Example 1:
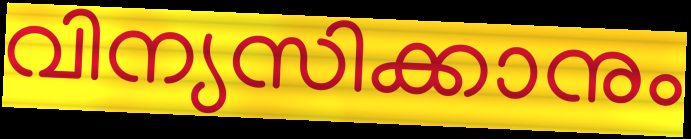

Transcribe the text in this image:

വിന്യസിക്കാനും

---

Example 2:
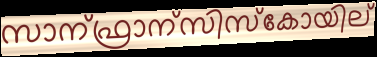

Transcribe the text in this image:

സാന്ഫ്രാന്സിസ്കോയില്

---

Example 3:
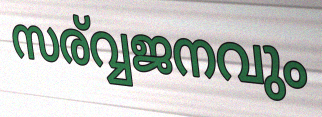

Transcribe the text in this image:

സര്വ്വജനവും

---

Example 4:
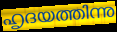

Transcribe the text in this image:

ഹൃദയത്തിന്നു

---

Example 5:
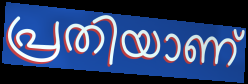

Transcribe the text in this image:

പ്രതിയാണ്